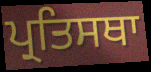
ਪ੍ਰਤਿਸਥਾ